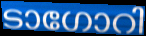
ടാഗോറി